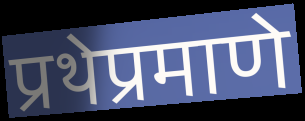
प्रथेप्रमाणे